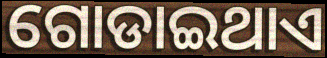
ଗୋଡାଇଥାଏ